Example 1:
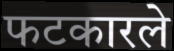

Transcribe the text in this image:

फटकारले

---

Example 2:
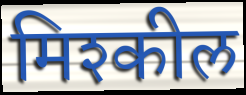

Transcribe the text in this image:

मिश्कील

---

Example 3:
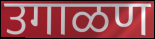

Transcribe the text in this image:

उगाळण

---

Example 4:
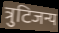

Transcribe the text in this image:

त्रुटिजन्य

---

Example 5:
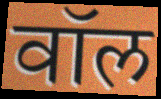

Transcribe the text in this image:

वॉल